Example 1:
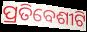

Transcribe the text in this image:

ପ୍ରତିବେଶୀଟି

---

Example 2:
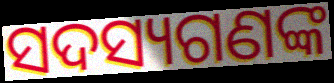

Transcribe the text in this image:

ସଦସ୍ୟଗଣଙ୍କ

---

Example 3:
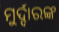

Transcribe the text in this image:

ମୁର୍ଦ୍ଦାରଙ୍କ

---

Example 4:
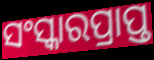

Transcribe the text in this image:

ସଂସ୍କାରପ୍ରାପ୍ତ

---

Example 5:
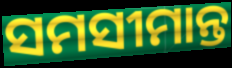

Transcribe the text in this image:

ସମସୀମାନ୍ତ